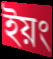
ইয়ং